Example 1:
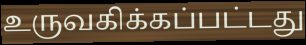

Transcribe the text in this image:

உருவகிக்கப்பட்டது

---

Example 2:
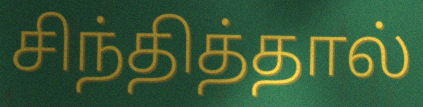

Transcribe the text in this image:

சிந்தித்தால்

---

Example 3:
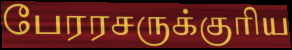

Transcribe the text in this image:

பேரரசருக்குரிய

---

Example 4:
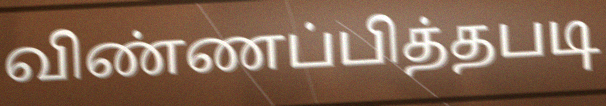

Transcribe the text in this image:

விண்ணப்பித்தபடி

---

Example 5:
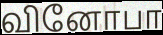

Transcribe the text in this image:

வினோபா